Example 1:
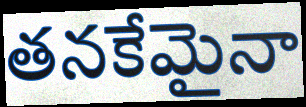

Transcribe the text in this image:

తనకేమైనా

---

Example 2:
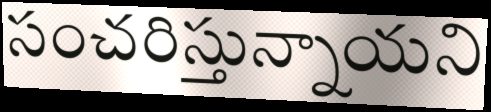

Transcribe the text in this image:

సంచరిస్తున్నాయని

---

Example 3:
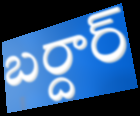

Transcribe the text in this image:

బర్దార్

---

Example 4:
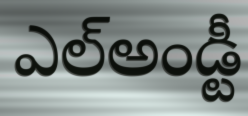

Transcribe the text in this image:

ఎల్అండ్టీ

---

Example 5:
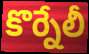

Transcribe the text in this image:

కొర్నేలీ